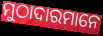
ମୁଠାଦାରମାନେ